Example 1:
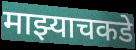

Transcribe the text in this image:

माझ्याचकडे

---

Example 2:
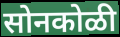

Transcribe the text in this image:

सोनकोळी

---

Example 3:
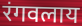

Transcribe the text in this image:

रंगवलाय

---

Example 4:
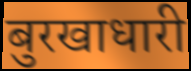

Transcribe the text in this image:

बुरखाधारी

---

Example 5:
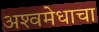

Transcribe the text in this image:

अश्‍वमेधाचा